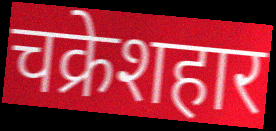
चक्रेशहार